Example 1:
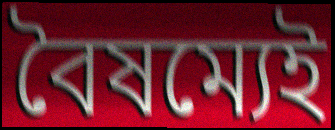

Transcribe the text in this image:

বৈষম্যেই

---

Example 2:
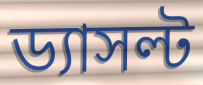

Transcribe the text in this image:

ড্যাসল্ট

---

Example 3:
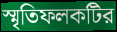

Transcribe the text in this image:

স্মৃতিফলকটির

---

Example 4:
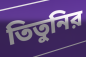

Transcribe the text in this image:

তিতুনির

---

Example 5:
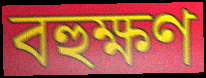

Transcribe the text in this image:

বহুক্ষণ